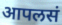
आपलसं